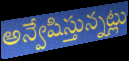
అన్వేషిస్తున్నట్లు